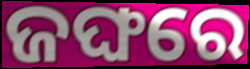
ଜଙ୍ଘରେ